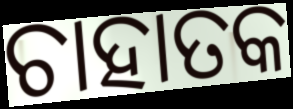
ଚାହାତକ